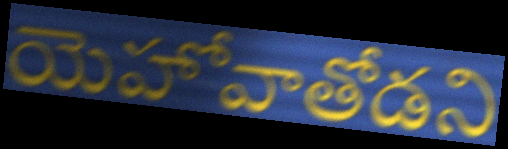
యెహోవాతోడని